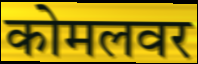
कोमलवर